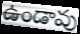
ఉండావు